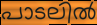
പാടലിൽ